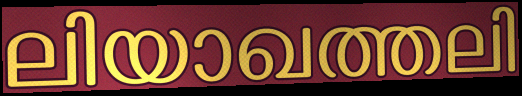
ലിയാഖത്തലി